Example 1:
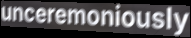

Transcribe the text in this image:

unceremoniously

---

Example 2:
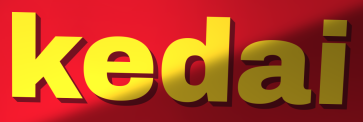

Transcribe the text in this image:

kedai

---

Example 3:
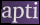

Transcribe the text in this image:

apti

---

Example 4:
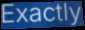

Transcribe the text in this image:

Exactly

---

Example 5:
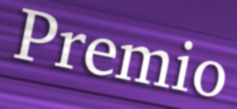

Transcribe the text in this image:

Premio